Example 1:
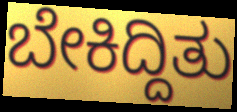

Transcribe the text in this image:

ಬೇಕಿದ್ದಿತು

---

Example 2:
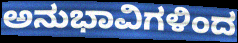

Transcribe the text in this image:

ಅನುಭಾವಿಗಳಿಂದ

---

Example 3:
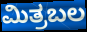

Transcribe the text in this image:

ಮಿತ್ರಬಲ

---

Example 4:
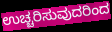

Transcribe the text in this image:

ಉಚ್ಚರಿಸುವುದರಿಂದ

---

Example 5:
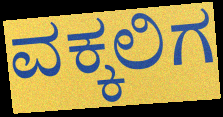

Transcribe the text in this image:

ವಕ್ಕಲಿಗ